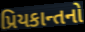
પ્રિયકાન્તનો